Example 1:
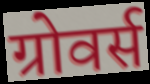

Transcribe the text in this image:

ग्रोवर्स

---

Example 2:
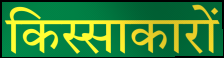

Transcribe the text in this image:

किस्साकारों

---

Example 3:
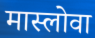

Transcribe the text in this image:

मास्लोवा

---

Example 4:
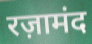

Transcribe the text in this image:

रज़ामंद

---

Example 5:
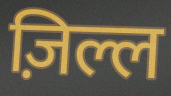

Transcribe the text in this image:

ज़िल्ल